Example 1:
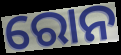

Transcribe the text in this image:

ରୋନ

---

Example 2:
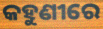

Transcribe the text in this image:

କହୁଣୀରେ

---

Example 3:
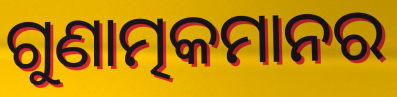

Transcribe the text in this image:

ଗୁଣାତ୍ମକମାନର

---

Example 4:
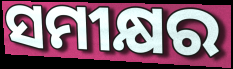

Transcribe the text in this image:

ସମୀକ୍ଷର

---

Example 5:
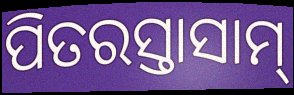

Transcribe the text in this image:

ପିତରସ୍ତାସାମ୍